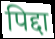
पिद्दा